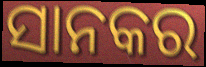
ସାନକର